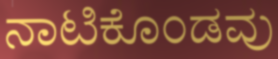
ನಾಟಿಕೊಂಡವು